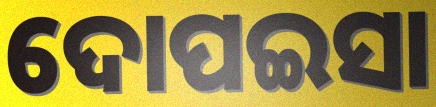
ଦୋପଇସା